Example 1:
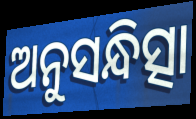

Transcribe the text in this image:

ଅନୁସନ୍ଧିତ୍ସା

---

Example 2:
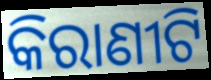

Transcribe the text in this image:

କିରାଣୀଟି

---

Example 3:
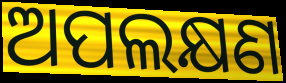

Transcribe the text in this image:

ଅପଲକ୍ଷଣ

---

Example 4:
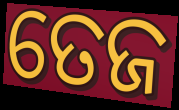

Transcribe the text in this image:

ତେଜ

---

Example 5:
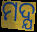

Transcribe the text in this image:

ମଦ୍ଯ